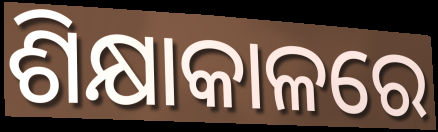
ଶିକ୍ଷାକାଳରେ